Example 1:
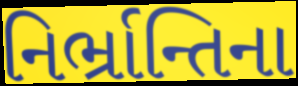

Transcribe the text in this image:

નિર્ભ્રાન્તિના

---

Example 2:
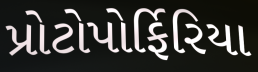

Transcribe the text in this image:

પ્રોટોપોર્ફિરિયા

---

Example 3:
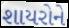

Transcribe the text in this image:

શાયરોને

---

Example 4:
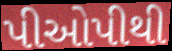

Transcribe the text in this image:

પીઓપીથી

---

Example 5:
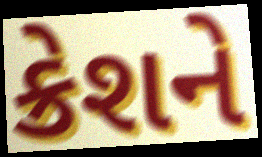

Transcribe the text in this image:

ક્રેશને